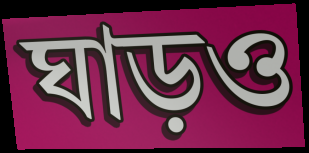
ঘাড়ও